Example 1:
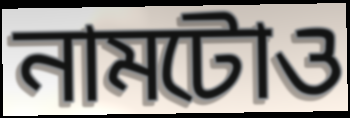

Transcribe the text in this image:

নামটোও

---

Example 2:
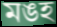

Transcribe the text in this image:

মঙহ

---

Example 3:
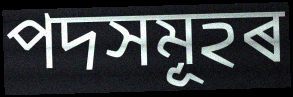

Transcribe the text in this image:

পদসমূহৰ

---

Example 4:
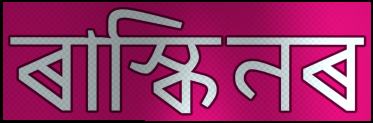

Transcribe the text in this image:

ৰাস্কিনৰ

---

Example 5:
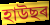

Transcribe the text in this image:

হাউছৰ